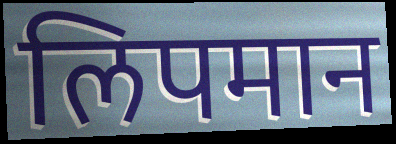
लिपमान